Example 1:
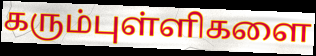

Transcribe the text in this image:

கரும்புள்ளிகளை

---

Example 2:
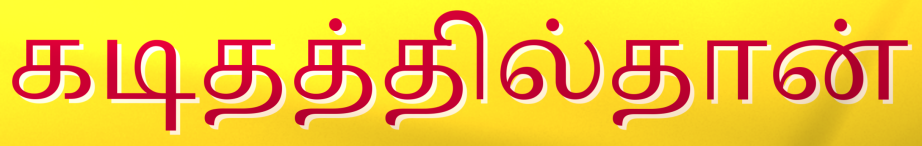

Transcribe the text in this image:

கடிதத்தில்தான்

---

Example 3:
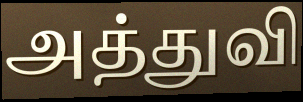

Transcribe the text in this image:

அத்துவி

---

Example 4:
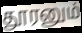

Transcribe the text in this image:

தூரனும்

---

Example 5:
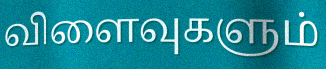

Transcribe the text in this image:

விளைவுகளும்